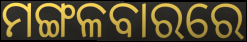
ମଙ୍ଗଳବାରରେ